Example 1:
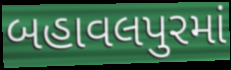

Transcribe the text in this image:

બહાવલપુરમાં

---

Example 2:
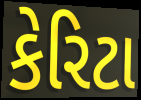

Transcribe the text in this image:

કેરિટા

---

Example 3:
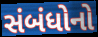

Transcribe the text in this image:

સંબંધોનો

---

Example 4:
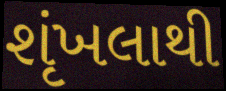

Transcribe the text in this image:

શૃંખલાથી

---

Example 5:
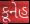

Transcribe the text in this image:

કૂનેહ